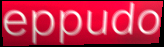
eppudo